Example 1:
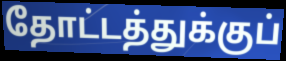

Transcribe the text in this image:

தோட்டத்துக்குப்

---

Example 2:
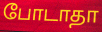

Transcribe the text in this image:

போடாதா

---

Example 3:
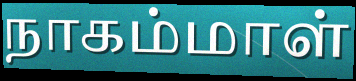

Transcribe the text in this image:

நாகம்மாள்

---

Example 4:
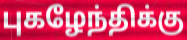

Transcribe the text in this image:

புகழேந்திக்கு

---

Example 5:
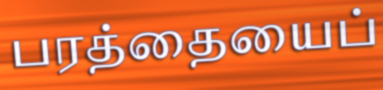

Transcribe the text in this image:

பரத்தையைப்